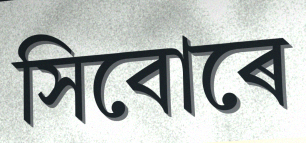
সিবোৰে